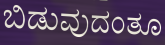
ಬಿಡುವುದಂತೂ